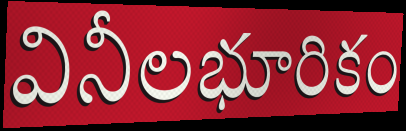
వినీలభూరికం